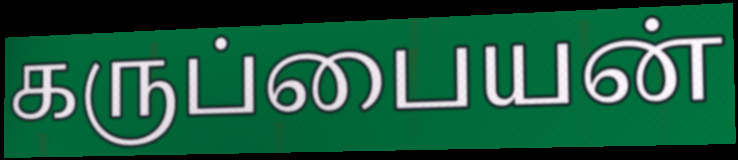
கருப்பையன்